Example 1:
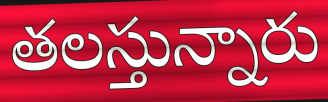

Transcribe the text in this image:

తలస్తున్నారు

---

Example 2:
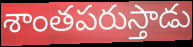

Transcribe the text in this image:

శాంతపరుస్తాడు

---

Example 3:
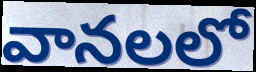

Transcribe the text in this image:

వానలలో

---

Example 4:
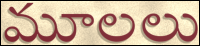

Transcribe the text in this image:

మూలలు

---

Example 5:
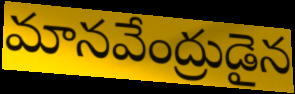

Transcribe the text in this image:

మానవేంద్రుడైన